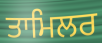
ਤਾਮਿਲਰ